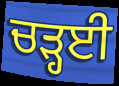
ਚੜ੍ਹਈ